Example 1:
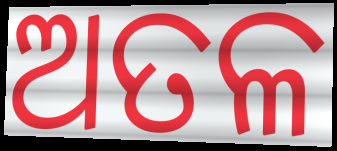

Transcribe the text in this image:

ଅତଳ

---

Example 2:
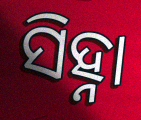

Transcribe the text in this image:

ସିହ୍ନା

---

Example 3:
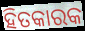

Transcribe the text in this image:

ହିତକାରକ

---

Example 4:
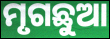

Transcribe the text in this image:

ମୃଗଛୁଆ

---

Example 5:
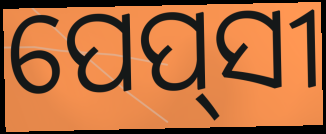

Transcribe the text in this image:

ପେପ୍‌ସୀ